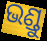
ଭଣ୍ଡୁ